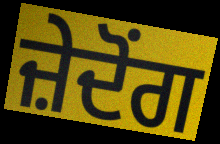
ਜ਼ੇਦੋਂਗ